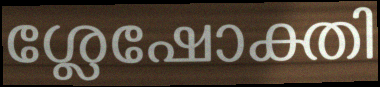
ശ്ലേഷോക്തി